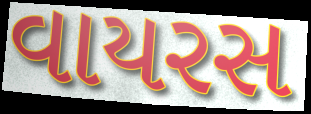
વાયરસ